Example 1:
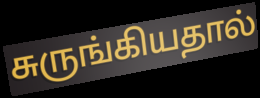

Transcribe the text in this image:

சுருங்கியதால்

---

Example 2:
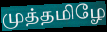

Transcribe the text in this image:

முத்தமிழே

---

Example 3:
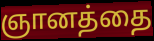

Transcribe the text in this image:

ஞானத்தை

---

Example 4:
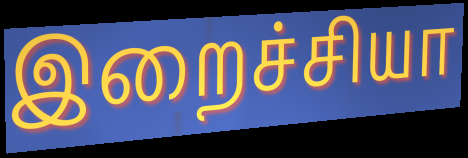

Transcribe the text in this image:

இறைச்சியா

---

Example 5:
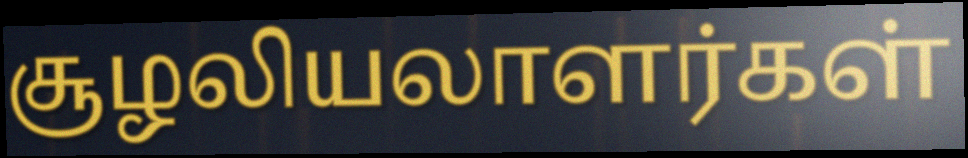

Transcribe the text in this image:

சூழலியலாளர்கள்